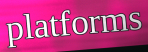
platforms